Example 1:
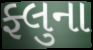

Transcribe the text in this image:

ફ્લુના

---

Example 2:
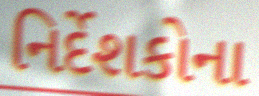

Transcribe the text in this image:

નિર્દેશકોના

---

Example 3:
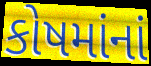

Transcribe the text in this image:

કોષમાંનાં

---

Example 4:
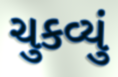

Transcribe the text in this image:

ચુકવ્યું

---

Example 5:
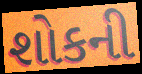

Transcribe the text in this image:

શોકની